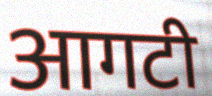
आगटी